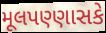
મૂલપણ્ણાસકે